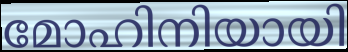
മോഹിനിയായി